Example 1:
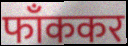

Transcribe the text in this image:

फाँककर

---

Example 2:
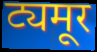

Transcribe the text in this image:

ट्यमूर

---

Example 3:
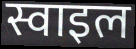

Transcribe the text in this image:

स्वाइल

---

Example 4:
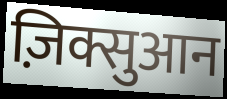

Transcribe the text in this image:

ज़िक्सुआन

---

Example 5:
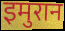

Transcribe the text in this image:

इमुरान